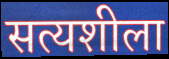
सत्यशीला